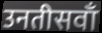
उनतीसवाँ